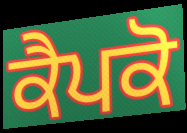
ਕੈਪਕੋ